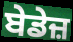
ਬੇਡੇਜ਼